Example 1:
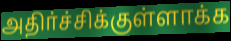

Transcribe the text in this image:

அதிர்ச்சிக்குள்ளாக்க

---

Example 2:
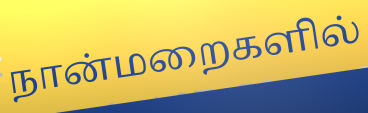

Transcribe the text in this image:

நான்மறைகளில்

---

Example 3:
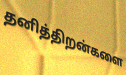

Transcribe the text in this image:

தனித்திறன்களை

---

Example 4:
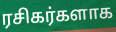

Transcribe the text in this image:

ரசிகர்களாக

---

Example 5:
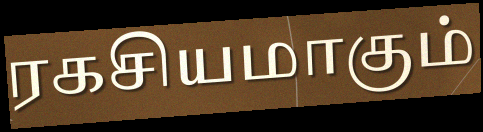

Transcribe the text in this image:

ரகசியமாகும்